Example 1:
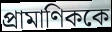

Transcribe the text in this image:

প্রামাণিককে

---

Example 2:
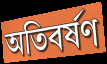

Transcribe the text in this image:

অতিবর্ষণ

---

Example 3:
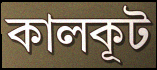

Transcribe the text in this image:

কালকূট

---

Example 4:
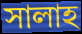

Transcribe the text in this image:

সালাহ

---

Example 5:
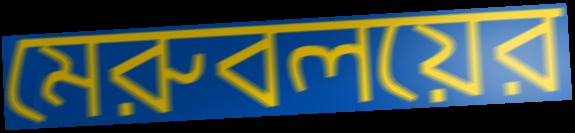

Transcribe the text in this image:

মেরুবলয়ের